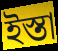
ইস্তা